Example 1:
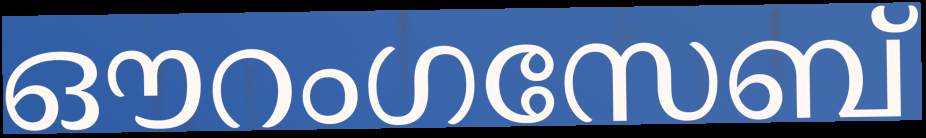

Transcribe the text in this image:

ഔറംഗസേബ്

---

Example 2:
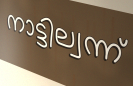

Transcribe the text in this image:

നാട്ടില്വന്ന്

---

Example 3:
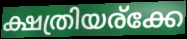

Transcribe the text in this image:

ക്ഷത്രിയര്ക്കേ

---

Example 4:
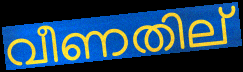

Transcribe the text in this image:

വീണതില്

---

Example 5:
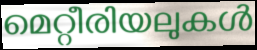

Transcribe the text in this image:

മെറ്റീരിയലുകൾ